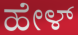
ಹೇಳ್